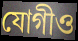
যোগীও